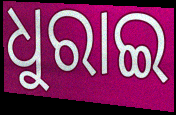
ଧୁରାଇ